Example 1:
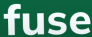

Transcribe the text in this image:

fuse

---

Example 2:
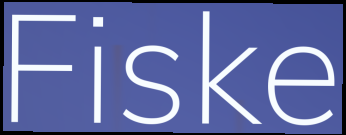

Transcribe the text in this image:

Fiske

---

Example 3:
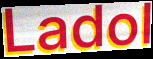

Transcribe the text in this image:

Ladol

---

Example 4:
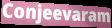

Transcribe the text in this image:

Conjeevaram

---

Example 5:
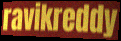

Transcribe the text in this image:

ravikreddy